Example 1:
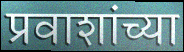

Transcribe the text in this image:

प्रवाशांच्या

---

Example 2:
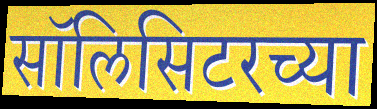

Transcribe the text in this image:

सॉलिसिटरच्या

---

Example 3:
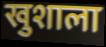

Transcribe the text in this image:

खुशाला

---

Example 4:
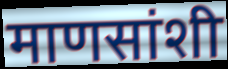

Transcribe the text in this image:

माणसांशी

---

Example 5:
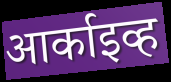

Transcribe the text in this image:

आर्काइव्ह